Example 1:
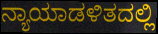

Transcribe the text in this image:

ನ್ಯಾಯಾಡಳಿತದಲ್ಲಿ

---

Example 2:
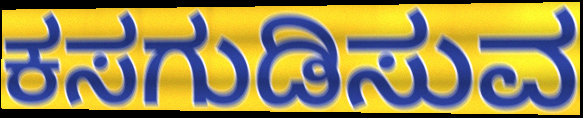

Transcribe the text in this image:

ಕಸಗುಡಿಸುವ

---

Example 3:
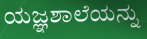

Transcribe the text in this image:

ಯಜ್ಞಶಾಲೆಯನ್ನು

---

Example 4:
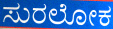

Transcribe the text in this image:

ಸುರಲೋಕ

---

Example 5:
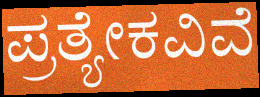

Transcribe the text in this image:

ಪ್ರತ್ಯೇಕವಿವೆ